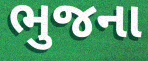
ભુજના